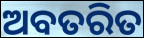
ଅବତରିତ